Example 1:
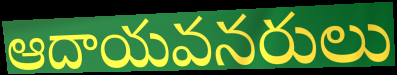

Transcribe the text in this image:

ఆదాయవనరులు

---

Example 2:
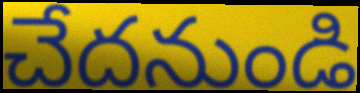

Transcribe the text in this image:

చేదనుండి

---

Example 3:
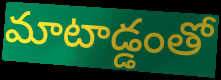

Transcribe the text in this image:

మాటాడ్డంతో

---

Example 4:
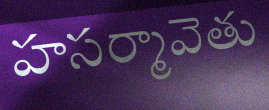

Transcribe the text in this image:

హసర్మావెతు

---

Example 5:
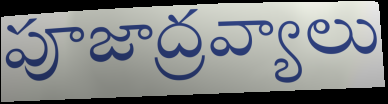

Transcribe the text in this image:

పూజాద్రవ్యాలు